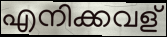
എനിക്കവള്